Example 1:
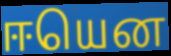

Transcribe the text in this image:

ஈயென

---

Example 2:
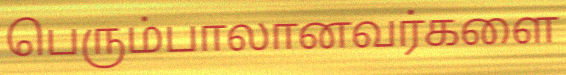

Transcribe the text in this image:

பெரும்பாலானவர்களை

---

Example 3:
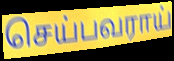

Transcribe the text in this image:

செய்பவராய்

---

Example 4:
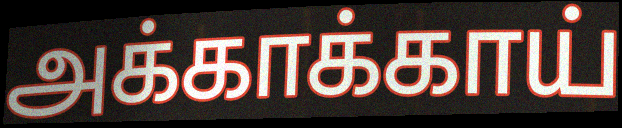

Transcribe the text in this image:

அக்காக்காய்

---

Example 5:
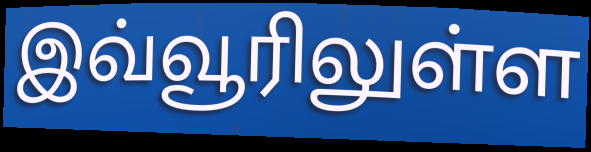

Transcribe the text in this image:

இவ்வூரிலுள்ள